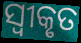
ସ୍ଵୀକୃତ